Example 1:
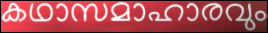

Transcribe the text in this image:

കഥാസമാഹാരവും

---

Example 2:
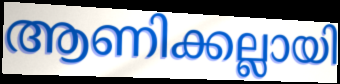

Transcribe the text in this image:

ആണിക്കല്ലായി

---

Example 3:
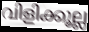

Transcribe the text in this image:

വിളിക്കൂല്ല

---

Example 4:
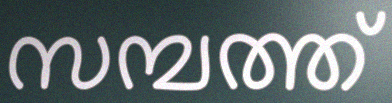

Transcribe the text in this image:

സമ്പത്ത്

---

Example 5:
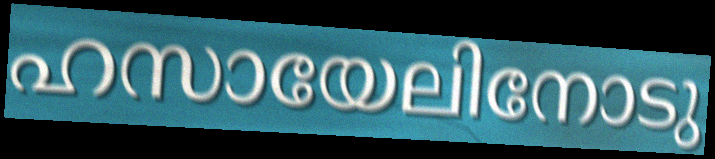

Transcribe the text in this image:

ഹസായേലിനോടു